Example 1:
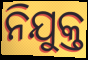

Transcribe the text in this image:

ନିଯୁକ୍ତ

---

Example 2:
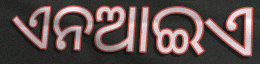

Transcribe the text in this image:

ଏନଆଇଏ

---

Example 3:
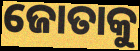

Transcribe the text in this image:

ଜୋତାକୁ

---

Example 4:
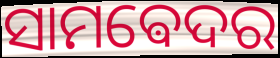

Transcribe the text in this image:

ସାମଵେଦର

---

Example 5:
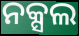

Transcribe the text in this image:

ନକ୍ସଲ